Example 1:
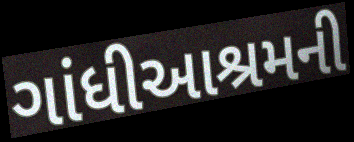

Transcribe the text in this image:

ગાંધીઆશ્રમની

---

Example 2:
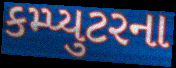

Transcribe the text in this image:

કમ્પ્યુટરના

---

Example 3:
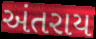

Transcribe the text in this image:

અંતરાય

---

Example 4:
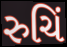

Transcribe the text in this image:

રુચિં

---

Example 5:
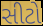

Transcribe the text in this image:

સીટો